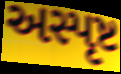
અસ્પૃષ્ટ